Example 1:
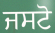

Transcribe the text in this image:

ਜਸਟੋ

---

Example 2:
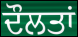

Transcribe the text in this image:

ਦੌਲਤਾਂ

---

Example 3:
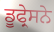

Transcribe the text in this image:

ਡੂਫ੍ਰੇਸਨੇ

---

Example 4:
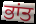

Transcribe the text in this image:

ਭਾਂਤ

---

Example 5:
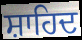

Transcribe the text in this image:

ਸ਼ਾਹਿਦ